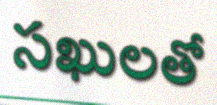
సఖులతో